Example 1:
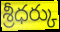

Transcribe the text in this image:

శ్రీధర్కు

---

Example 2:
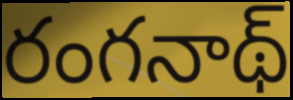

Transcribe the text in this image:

రంగనాథ్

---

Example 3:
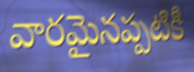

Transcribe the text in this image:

వారమైనప్పటికీ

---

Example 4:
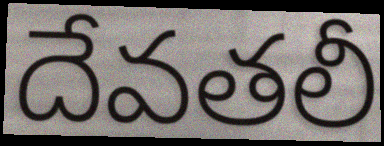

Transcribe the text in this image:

దేవతలీ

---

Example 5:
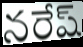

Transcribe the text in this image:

నరేష్